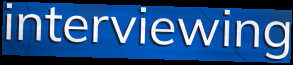
interviewing